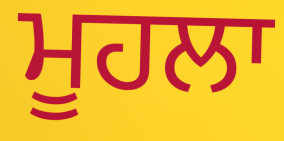
ਮੂਹਲਾ